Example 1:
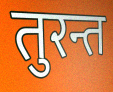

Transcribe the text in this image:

तुरन्त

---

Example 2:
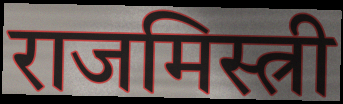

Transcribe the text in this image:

राजमिस्त्री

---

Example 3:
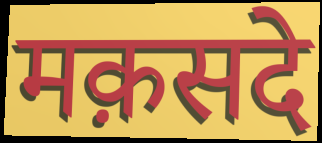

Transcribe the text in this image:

मक़सदे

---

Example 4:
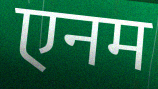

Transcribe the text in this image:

एनम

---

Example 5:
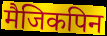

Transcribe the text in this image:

मैजिकपिन